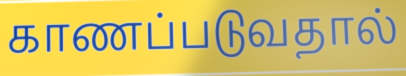
காணப்படுவதால்